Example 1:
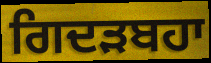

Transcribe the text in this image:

ਗਿਦੜਬਹਾ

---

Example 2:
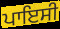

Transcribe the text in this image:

ਪਾਇਸੀ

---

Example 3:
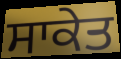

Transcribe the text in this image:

ਸਾਕੇਤ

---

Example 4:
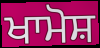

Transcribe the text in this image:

ਖਾਮੋਸ਼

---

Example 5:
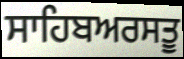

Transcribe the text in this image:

ਸਾਹਿਬਅਰਸਤੂ